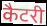
कैटरी